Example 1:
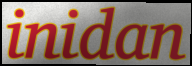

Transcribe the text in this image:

inidan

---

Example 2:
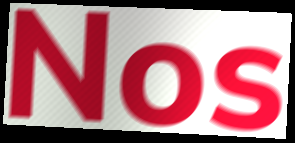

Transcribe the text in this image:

Nos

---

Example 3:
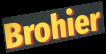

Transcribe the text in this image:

Brohier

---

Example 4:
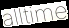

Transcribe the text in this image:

alltime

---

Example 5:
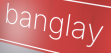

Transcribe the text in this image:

banglay